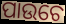
ପାଉଚେ